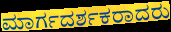
ಮಾರ್ಗದರ್ಶಕರಾದರು